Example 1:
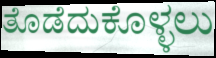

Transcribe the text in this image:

ತೊಡೆದುಕೊಳ್ಳಲು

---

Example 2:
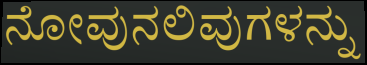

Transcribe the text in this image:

ನೋವುನಲಿವುಗಳನ್ನು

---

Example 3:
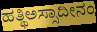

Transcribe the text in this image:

ಹತ್ಥಿಅಸ್ಸಾದೀನಂ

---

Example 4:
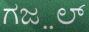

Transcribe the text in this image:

ಗಜ಼ಲ್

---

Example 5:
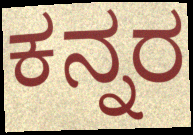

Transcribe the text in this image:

ಕನ್ನರ